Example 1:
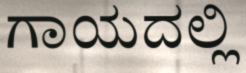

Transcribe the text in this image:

ಗಾಯದಲ್ಲಿ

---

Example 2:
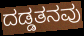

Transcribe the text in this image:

ದಡ್ಡತನವು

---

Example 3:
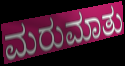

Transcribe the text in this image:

ಮರುಮಾತು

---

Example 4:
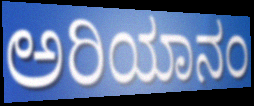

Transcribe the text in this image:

ಅರಿಯಾನಂ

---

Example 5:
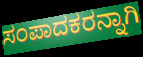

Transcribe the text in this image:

ಸಂಪಾದಕರನ್ನಾಗಿ